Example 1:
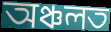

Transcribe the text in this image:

অঞ্চলত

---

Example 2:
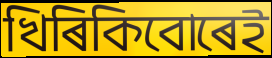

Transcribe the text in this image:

খিৰিকিবোৰেই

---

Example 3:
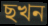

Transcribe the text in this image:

ছখন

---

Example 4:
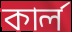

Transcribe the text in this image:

কাৰ্ল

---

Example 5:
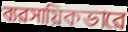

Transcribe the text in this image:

ব্যৱসায়িকভাৱে